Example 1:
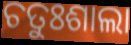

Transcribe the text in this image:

ଚତୁଃଶାଲା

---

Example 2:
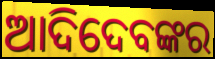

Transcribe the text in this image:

ଆଦିଦେବଙ୍କର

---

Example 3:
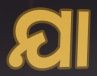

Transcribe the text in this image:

ଯା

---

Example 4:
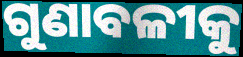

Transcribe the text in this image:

ଗୁଣାବଳୀକୁ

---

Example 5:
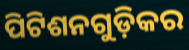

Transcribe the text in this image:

ପିଟିଶନଗୁଡ଼ିକର